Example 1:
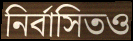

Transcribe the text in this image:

নির্বাসিতও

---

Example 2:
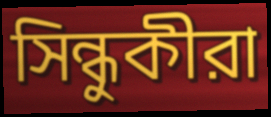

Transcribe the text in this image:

সিন্ধুকীরা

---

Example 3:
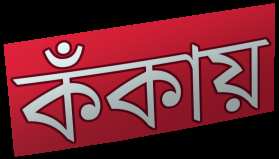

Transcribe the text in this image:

কঁকায়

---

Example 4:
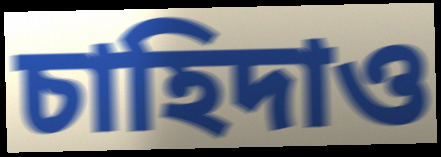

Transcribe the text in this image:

চাহিদাও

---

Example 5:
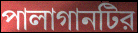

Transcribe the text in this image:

পালাগানটির